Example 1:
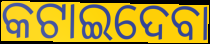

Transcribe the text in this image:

କଟାଇଦେବା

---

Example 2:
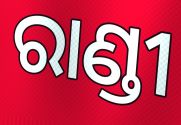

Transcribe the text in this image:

ରାଣ୍ଡୀ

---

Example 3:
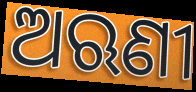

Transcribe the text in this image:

ଅଋଣୀ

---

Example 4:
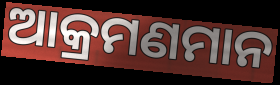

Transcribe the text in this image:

ଆକ୍ରମଣମାନ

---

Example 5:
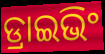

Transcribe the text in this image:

ଡ୍ରାଇଭିଂ